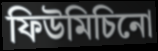
ফিউমিচিনো